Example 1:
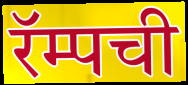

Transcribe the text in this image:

रॅम्पची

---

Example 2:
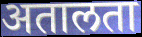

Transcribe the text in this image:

अतालता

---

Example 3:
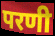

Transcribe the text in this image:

परणी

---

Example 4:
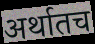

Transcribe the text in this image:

अर्थातच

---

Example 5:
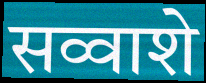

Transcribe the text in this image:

सव्वाशे